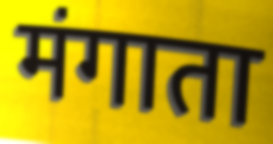
मंगाता